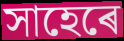
সাহেৰে